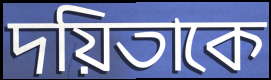
দয়িতাকে